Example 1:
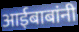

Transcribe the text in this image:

आईबाबांनी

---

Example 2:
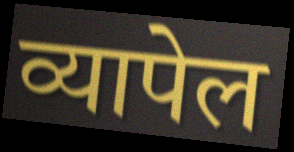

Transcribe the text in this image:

व्यापेल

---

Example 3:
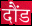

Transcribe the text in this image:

दौंड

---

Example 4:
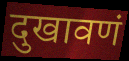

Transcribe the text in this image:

दुखावणं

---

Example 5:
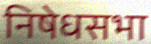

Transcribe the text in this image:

निषेधसभा